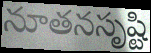
నూతనసృష్టి